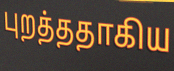
புறத்ததாகிய